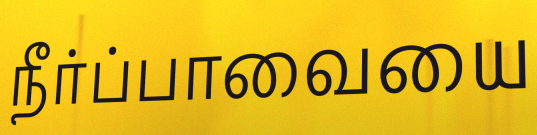
நீர்ப்பாவையை